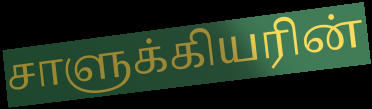
சாளுக்கியரின்